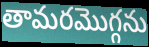
తామరమొగ్గను